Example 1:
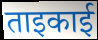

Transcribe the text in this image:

ताइकाई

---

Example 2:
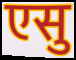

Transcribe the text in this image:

एसु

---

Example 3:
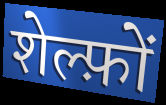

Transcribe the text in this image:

शेल्फ़ों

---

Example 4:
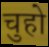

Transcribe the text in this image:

चुहो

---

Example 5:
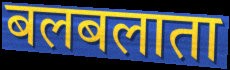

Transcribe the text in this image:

बलबलाता